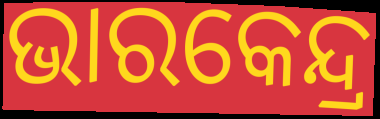
ଭାରକେନ୍ଦ୍ର